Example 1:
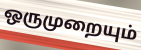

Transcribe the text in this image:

ஒருமுறையும்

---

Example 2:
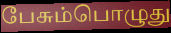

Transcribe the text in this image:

பேசும்பொழுது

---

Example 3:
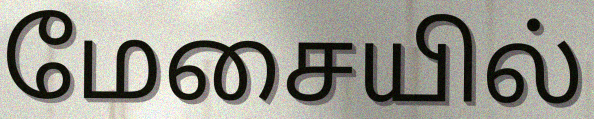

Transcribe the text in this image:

மேசையில்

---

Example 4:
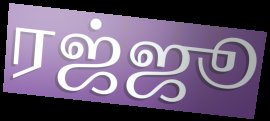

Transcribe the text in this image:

ரஜ்ஜூ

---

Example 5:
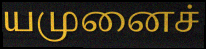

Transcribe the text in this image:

யமுனைச்